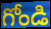
గోండి